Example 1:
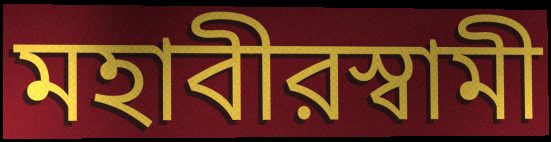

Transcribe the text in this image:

মহাবীরস্বামী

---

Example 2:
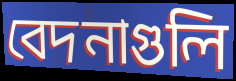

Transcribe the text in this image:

বেদনাগুলি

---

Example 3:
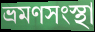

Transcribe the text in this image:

ভ্রমণসংস্থা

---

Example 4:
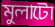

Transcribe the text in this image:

মুলাটো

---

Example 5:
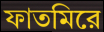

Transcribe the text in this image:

ফাতমিরে